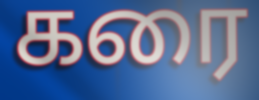
கரை